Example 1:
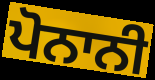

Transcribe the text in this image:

ਪੋਨਾਨੀ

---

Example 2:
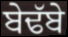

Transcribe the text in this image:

ਬੇਢੱਬੇ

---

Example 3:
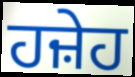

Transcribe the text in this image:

ਹਜ਼ੇਹ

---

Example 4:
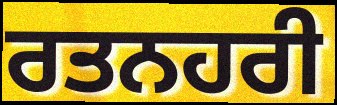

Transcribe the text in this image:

ਰਤਨਹਰੀ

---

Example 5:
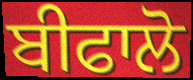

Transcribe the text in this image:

ਬੀਫਾਲੋ